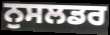
ਨੁਸਲਡਰ